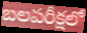
బలపరీక్షలో